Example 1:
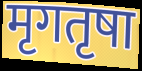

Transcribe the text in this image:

मृगतृषा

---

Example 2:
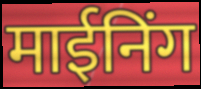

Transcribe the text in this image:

माईनिंग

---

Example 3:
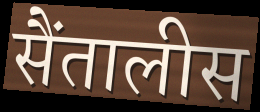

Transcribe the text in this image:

सैंतालीस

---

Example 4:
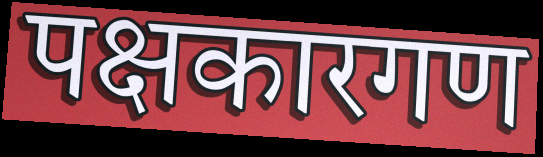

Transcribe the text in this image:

पक्षकारगण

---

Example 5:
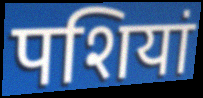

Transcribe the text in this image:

पशियां